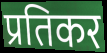
प्रतिकर